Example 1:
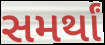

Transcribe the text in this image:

સમર્થાં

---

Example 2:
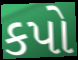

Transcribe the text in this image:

કપો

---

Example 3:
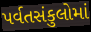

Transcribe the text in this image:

પર્વતસંકુલોમાં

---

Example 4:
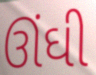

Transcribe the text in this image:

ઊંઘી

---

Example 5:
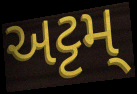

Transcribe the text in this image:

અટ્ટમ્